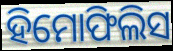
ହିମୋଫିଲିସ